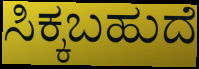
ಸಿಕ್ಕಬಹುದೆ